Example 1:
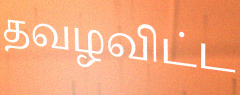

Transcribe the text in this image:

தவழவிட்ட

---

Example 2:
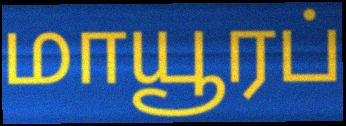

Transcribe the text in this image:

மாயூரப்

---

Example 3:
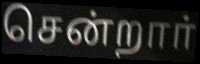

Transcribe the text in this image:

சென்றார்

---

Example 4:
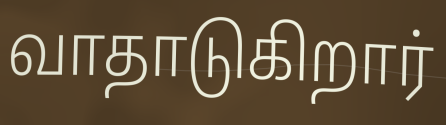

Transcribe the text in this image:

வாதாடுகிறார்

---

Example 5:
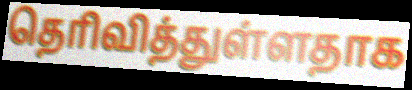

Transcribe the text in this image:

தெரிவித்துள்ளதாக